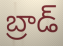
బ్రాడ్